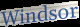
Windsor